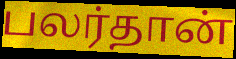
பலர்தான்